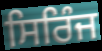
ਸਿਰਿੰਜ